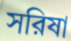
সরিষা